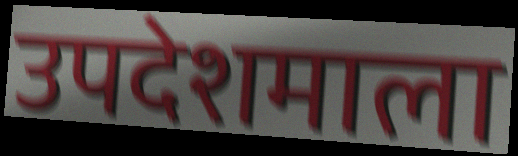
उपदेशमाला